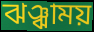
ঝঞ্ঝাময়